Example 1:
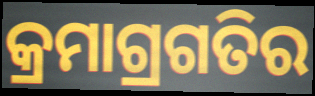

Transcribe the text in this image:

କ୍ରମାଗ୍ରଗତିର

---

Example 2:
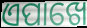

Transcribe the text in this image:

ଏପାଖେ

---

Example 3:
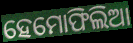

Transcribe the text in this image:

ହେମୋଫିଲିଆ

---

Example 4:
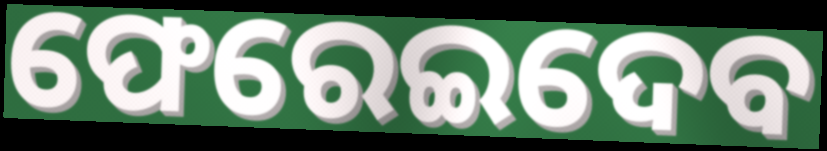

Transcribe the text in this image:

ଫେରେଇଦେବ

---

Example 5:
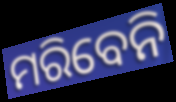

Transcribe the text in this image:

ମରିବେନି